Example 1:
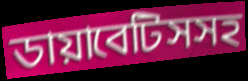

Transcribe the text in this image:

ডায়াবেটিসসহ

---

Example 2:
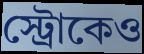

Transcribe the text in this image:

স্ট্রোকেও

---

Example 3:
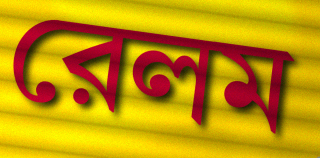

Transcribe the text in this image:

রেলম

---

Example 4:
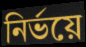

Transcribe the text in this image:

নির্ভয়ে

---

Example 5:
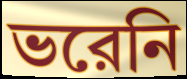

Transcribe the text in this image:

ভরেনি